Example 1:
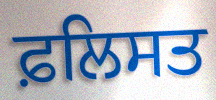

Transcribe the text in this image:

ਫ਼ਲਿਸਤ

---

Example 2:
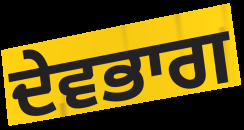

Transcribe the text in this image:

ਦੇਵਭਾਗ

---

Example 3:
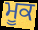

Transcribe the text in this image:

ਮੂਕ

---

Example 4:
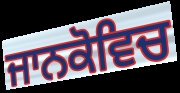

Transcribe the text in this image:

ਜਾਨਕੋਵਿਚ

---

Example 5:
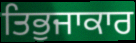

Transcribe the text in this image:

ਤਿਭੁਜਾਕਾਰ